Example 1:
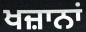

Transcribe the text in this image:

ਖਜ਼ਾਨਾਂ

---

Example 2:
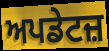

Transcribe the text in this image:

ਅਪਡੇਟਜ਼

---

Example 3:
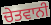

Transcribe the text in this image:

ਚੇਤਵਾਨੀ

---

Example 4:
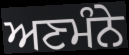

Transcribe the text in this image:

ਅਣਮੰਨੇ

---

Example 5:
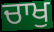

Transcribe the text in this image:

ਚਾਖੁ